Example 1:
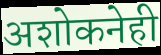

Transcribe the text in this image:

अशोकनेही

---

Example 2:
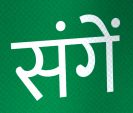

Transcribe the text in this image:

संगें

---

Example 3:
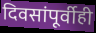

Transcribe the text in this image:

दिवसांपूर्वीही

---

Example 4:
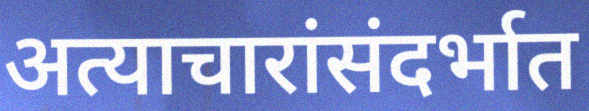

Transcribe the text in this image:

अत्याचारांसंदर्भात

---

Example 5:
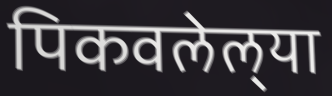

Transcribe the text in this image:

पिकवलेल्या